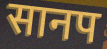
सानप